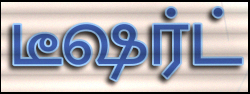
டீஷர்ட்